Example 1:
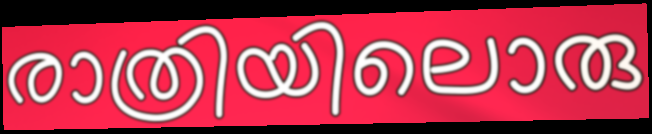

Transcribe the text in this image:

രാത്രിയിലൊരു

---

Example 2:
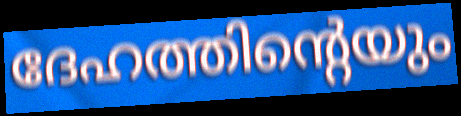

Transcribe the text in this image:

ദേഹത്തിന്റെയും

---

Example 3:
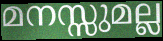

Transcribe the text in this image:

മനസ്സുമല്ല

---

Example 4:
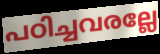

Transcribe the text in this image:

പഠിച്ചവരല്ലേ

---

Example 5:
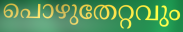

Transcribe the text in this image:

പൊഴുതേറ്റവും